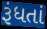
રૂંધતાં